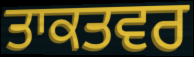
ਤਾਕਤਵਰ